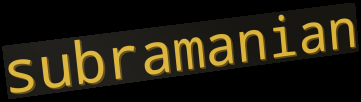
subramanian